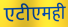
एटीएमही